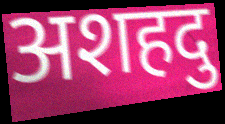
अशहदु